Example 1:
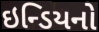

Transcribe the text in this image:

ઇન્ડિયનો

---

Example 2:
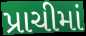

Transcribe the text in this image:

પ્રાચીમાં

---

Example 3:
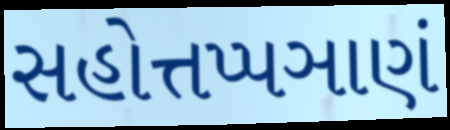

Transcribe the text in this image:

સહોત્તપ્પઞાણં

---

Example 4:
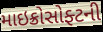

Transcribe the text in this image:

માઇક્રોસોફ્ટની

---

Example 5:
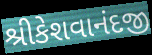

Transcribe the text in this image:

શ્રીકેશવાનંદજી